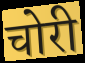
चोरी